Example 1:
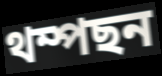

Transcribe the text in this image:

থম্পছন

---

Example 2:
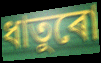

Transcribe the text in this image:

ধাতুৰো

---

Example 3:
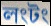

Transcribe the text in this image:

লংটং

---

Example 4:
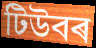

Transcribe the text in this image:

টিউবৰ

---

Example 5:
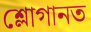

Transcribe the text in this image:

শ্লোগানত